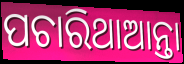
ପଚାରିଥାଆନ୍ତା